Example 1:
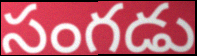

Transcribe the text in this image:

సంగడు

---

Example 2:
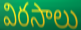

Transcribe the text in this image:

విరసాలు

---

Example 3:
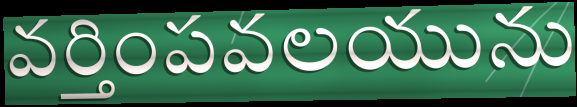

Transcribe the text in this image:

వర్తింపవలయును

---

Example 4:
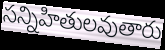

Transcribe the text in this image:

సన్నిహితులవుతారు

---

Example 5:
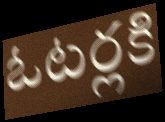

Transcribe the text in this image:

ఓటర్లకి